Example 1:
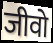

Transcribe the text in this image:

जीवो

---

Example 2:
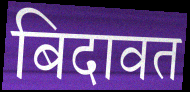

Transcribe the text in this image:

बिदावत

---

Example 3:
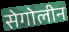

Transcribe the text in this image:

सेगोलीन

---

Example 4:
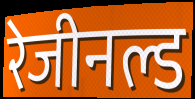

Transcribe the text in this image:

रेजीनल्ड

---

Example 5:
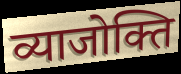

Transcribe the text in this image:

व्याजोक्ति